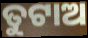
ତୁଟାଅ